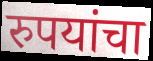
रुपयांचा